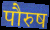
पौरुष